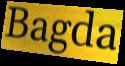
Bagda